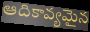
ఆదికావ్యమైన